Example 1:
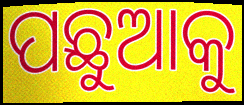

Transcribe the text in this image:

ପଛୁଆକୁ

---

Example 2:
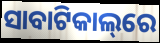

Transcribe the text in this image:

ସାବାଟିକାଲ୍‌ରେ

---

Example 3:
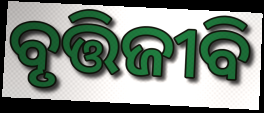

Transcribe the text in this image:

ବୃତ୍ତିଜୀବି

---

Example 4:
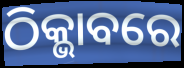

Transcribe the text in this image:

ଠିକ୍ଭାବରେ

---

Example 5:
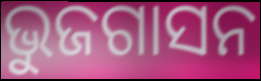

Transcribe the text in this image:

ଭୁଜଗାସନ